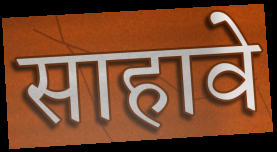
साहावे